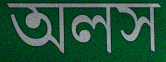
অলস